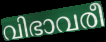
വിഭാവരീ